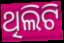
ଥିଲିଟି